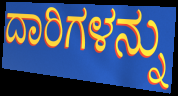
ದಾರಿಗಳನ್ನು